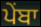
ਪੇਂਬਾ